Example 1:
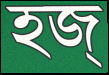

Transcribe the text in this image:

হজ্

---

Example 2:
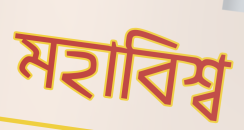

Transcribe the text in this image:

মহাবিশ্ব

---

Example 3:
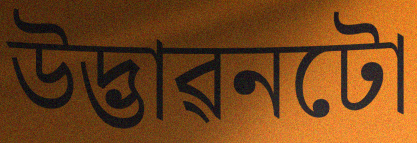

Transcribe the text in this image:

উদ্ভাৱনটো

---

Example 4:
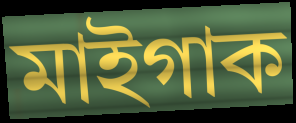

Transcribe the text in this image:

মাইগাক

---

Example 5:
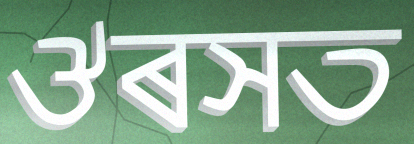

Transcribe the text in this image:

ঔৰসত